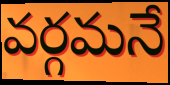
వర్గమనే